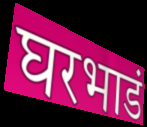
घरभाडं